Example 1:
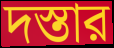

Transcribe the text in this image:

দস্তার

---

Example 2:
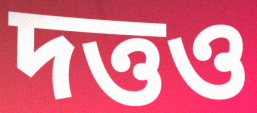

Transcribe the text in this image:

দত্তও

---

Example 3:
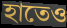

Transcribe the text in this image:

হাতেও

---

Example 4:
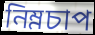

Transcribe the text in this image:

নিম্নচাপ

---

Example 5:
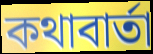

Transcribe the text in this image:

কথাবার্তা